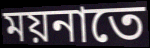
ময়নাতে